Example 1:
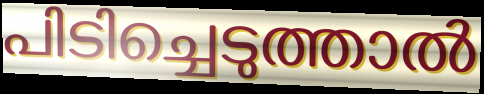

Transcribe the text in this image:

പിടിച്ചെടുത്താൽ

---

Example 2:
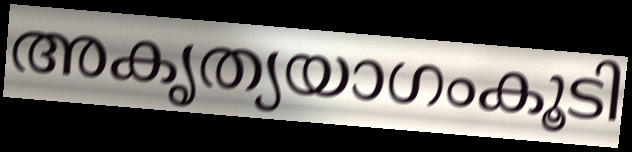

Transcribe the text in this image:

അകൃത്യയാഗംകൂടി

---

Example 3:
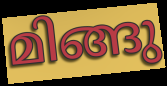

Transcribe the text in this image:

മിങ്ങു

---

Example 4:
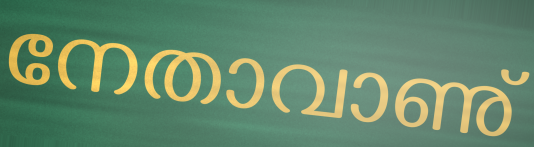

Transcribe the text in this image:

നേതാവാണു്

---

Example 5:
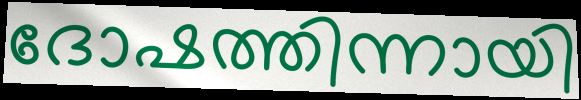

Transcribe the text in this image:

ദോഷത്തിന്നായി